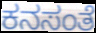
ಕನಸಂತೆ